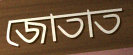
জোতাত